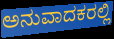
ಅನುವಾದಕರಲ್ಲಿ